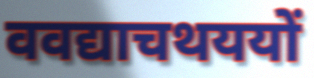
ववद्याचथययों